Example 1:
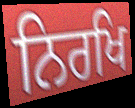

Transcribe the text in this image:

ਨਿਰਖਿ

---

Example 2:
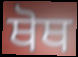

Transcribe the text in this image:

ਥੋਥ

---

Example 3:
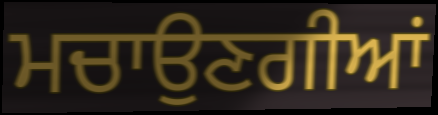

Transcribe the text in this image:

ਮਚਾਉਣਗੀਆਂ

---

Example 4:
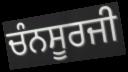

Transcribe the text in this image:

ਚੰਨਸੂਰਜੀ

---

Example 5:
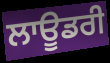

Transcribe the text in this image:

ਲਾਊਡਰੀ